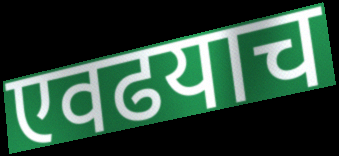
एवढयाच